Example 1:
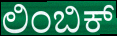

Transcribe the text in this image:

ಲಿಂಬಿಕ್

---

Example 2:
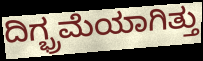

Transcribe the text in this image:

ದಿಗ್ಭ್ರಮೆಯಾಗಿತ್ತು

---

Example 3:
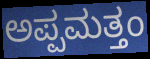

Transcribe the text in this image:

ಅಪ್ಪಮತ್ತಂ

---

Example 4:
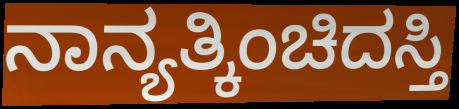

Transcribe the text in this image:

ನಾನ್ಯತ್ಕಿಂಚಿದಸ್ತಿ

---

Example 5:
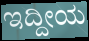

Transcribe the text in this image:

ಇದ್ದೀಯ